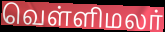
வெள்ளிமலர்